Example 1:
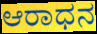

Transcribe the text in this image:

ಆರಾಧನ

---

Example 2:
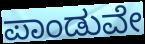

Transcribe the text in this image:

ಪಾಂಡುವೇ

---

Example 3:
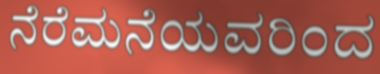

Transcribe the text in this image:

ನೆರೆಮನೆಯವರಿಂದ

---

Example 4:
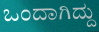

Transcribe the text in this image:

ಒಂದಾಗಿದ್ದು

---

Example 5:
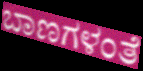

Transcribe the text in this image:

ಬಾಣಗಳಂತೆ